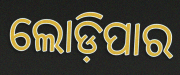
ଲୋଡ଼ିପାର